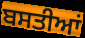
ਬਸਤੀਆਂ